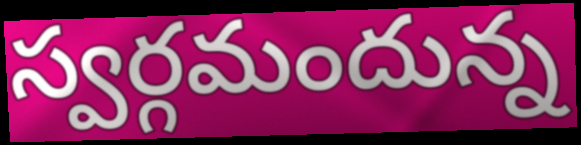
స్వర్గమందున్న